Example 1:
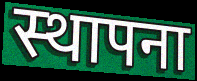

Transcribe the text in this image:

स्थापना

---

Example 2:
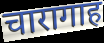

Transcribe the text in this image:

चारागाह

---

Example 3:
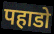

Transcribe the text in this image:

पहाडो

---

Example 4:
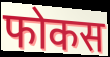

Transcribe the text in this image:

फोकस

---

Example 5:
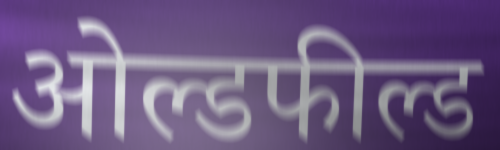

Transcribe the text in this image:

ओल्डफील्ड